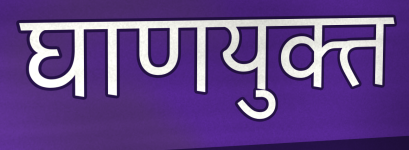
घाणयुक्त